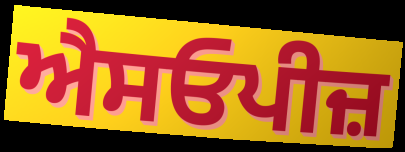
ਐਸਓਪੀਜ਼